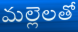
మల్లెలతో